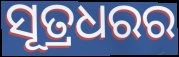
ସୂତ୍ରଧରର